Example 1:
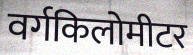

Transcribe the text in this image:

वर्गकिलोमीटर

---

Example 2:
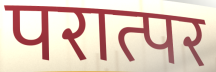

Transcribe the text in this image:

परात्‍पर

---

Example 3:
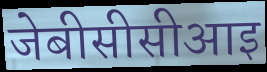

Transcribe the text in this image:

जेबीसीसीआइ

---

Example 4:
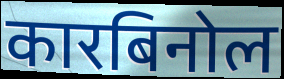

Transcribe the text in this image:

कारबिनोल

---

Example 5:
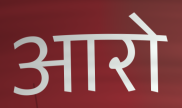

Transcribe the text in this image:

आरो